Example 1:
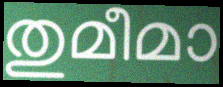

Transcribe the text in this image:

തുമീമാ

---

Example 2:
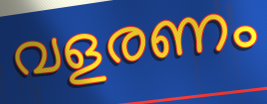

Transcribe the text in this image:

വളരണം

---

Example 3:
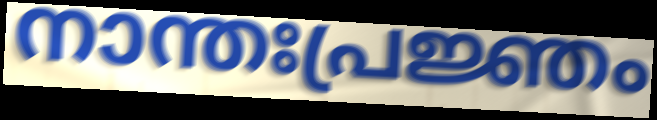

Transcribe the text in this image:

നാന്തഃപ്രജ്ഞം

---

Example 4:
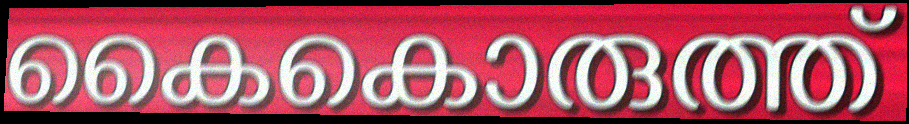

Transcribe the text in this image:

കൈകൊരുത്ത്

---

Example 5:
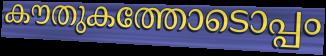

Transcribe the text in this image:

കൗതുകത്തോടൊപ്പം